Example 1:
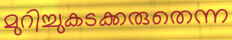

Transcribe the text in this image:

മുറിച്ചുകടക്കരുതെന്ന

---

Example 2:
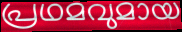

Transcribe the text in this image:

പ്രഥമവുമായ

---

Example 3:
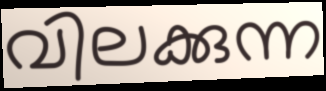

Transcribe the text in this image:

വിലക്കുന്ന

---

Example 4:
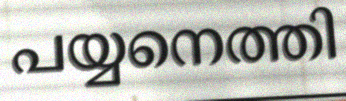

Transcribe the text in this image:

പയ്യനെത്തി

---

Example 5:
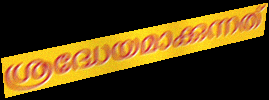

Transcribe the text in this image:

ശ്രദ്ധേയമാക്കുന്നത്